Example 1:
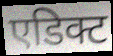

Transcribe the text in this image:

एडिक्ट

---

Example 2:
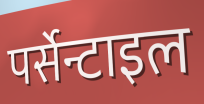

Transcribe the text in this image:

पर्सेन्टाइल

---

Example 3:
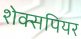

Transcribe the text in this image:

शेक्सपियर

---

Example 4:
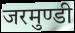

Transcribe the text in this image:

जरमुण्डी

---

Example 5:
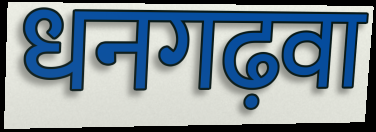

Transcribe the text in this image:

धनगढ़वा